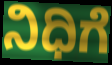
ನಿಧಿಗೆ